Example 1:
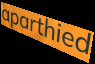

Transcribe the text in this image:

aparthied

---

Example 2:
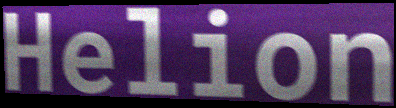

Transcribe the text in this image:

Helion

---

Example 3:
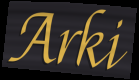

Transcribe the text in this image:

Arki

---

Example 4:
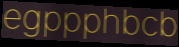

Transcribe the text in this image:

egppphbcb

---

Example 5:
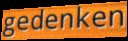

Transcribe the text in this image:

gedenken